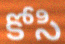
కోసి